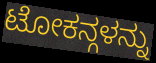
ಟೋಕನ್ಗಳನ್ನು